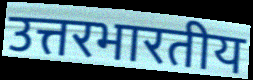
उत्तरभारतीय